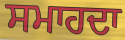
ਸਮਾਹਦਾ